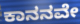
ಕಾನನವೇ